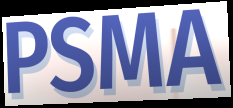
PSMA